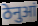
ठेनुआं